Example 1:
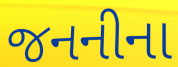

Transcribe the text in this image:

જનનીના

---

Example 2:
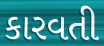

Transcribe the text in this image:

કારવતી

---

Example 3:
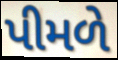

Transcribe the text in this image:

પીમળે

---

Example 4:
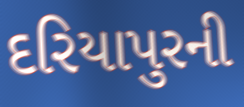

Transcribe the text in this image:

દરિયાપુરની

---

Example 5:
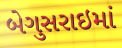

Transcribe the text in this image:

બેગુસરાઇમાં